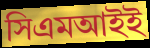
সিএমআইই